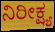
ನಿರೀಕ್ಷ್ಯ